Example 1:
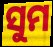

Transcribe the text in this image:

ସୁମ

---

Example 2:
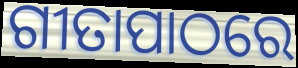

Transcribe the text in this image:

ଗୀତାପାଠରେ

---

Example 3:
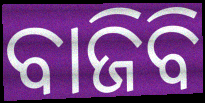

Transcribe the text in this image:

ବାଜିବି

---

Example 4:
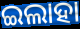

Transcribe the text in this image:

ଇଲାହା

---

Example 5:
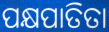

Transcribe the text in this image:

ପକ୍ଷପାତିତା